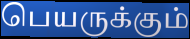
பெயருக்கும்